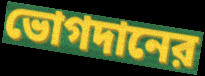
ভোগদানের